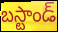
బస్టాండ్